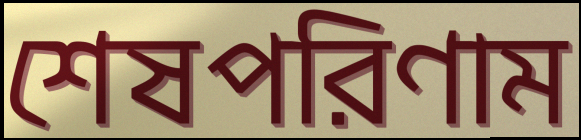
শেষপরিণাম